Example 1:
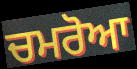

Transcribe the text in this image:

ਚਮਰੋਆ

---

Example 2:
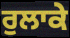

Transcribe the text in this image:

ਰੁਲਾਕੇ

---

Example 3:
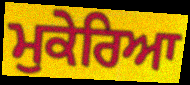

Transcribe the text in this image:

ਮੁਕੇਰਿਆ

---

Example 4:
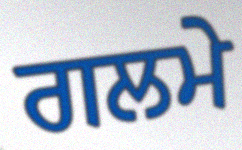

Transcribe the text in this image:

ਗਲਮੇ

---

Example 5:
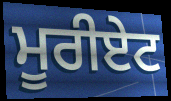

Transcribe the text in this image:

ਮੂਰੀਏਟ